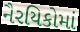
નૈરયિકોમાં